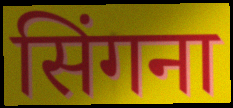
सिंगना